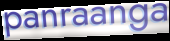
panraanga